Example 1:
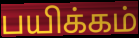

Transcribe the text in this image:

பயிக்கம்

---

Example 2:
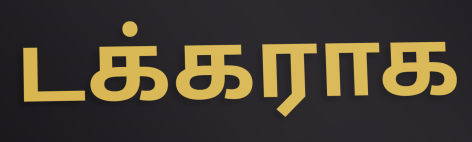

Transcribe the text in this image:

டக்கராக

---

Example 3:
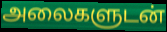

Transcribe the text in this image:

அலைகளுடன்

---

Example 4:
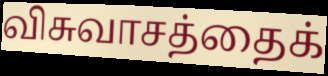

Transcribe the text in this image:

விசுவாசத்தைக்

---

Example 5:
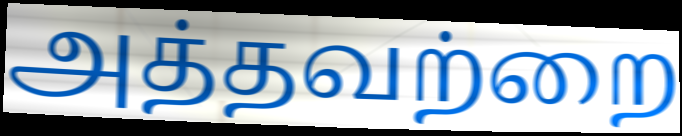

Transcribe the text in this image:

அத்தவற்றை